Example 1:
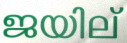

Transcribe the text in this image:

ജയില്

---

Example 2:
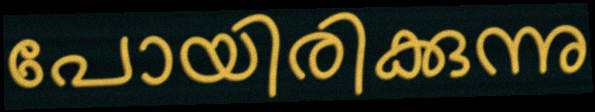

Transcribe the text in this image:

പോയിരിക്കുന്നു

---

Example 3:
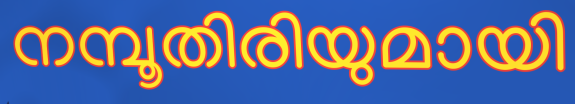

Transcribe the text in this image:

നമ്പൂതിരിയുമായി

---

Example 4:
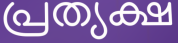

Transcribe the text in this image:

പ്രത്യക്ഷ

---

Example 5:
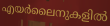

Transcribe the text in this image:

എയർലൈനുകളിൽ